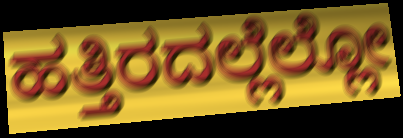
ಹತ್ತಿರದಲ್ಲೆಲ್ಲೋ